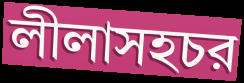
লীলাসহচর